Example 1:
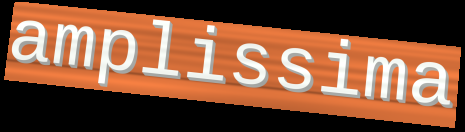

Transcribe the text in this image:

amplissima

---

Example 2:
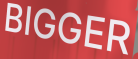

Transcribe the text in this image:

BIGGER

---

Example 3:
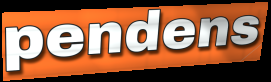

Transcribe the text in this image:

pendens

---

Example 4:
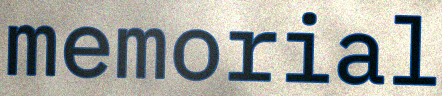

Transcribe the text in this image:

memorial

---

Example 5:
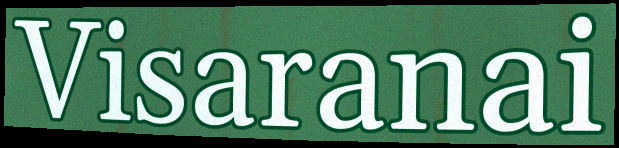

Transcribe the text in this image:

Visaranai